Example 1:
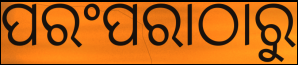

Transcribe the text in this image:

ପରଂପରାଠାରୁ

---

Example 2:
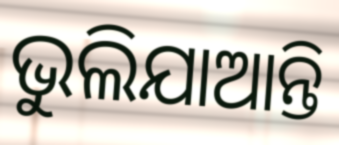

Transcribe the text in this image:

ଭୁଲିଯାଆନ୍ତି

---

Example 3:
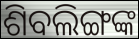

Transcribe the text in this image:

ଶିବଲିଙ୍ଗଙ୍କ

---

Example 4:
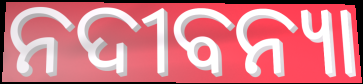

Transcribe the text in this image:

ନଦୀବନ୍ୟା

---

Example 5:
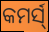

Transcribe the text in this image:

କମର୍ସ୍